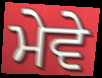
ਮੇਵੇ